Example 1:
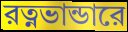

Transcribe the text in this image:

রত্নভান্ডারে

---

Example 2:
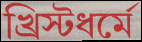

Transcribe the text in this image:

খ্রিস্টধর্মে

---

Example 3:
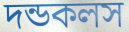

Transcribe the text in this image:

দন্ডকলস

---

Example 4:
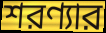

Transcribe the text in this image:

শরণ্যার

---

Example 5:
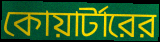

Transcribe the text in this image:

কোয়ার্টারের